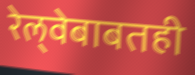
रेल्वेबाबतही